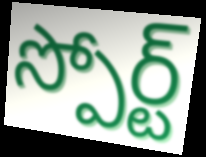
స్పోర్ట్